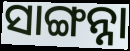
ସାଙ୍ଗନ୍ନା